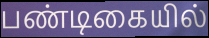
பண்டிகையில்